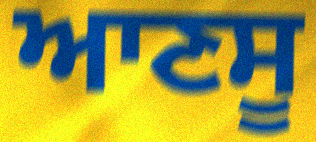
ਆਣਸੂ